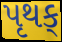
પૃથક્